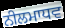
ਨੀਲਮਾਧਵ